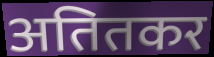
अतितकर